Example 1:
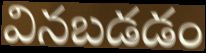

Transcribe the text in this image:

వినబడడం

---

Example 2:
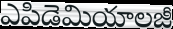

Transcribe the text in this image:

ఎపిడెమియాలజీ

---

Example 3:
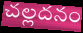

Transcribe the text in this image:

చల్లదనం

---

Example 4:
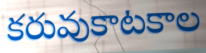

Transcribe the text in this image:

కరువుకాటకాల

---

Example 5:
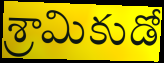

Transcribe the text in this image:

శ్రామికుడో